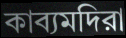
কাব্যমদিরা